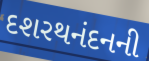
દશરથનંદનની